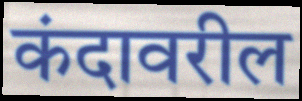
कंदावरील